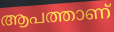
ആപത്താണ്